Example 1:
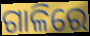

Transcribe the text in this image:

ଗାଳିରେ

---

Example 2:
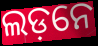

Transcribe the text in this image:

ଲଡ଼ନେ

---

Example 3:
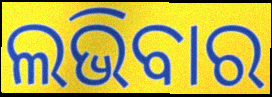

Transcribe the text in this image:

ଲଭିବାର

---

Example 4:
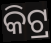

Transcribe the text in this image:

କିଟ୍ର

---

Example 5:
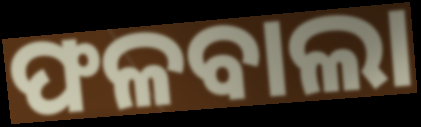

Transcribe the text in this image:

ଫଳବାଲା